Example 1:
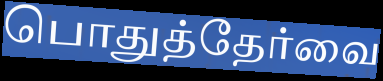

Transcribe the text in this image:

பொதுத்தேர்வை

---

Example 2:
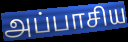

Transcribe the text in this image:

அப்பாசிய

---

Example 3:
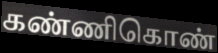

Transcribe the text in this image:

கண்ணிகொண்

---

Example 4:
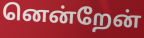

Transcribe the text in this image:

னென்றேன்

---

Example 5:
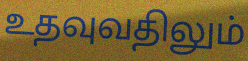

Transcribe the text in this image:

உதவுவதிலும்